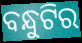
ବନ୍ଧୁଟିର